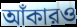
আঁকারও